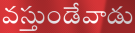
వస్తుండేవాడు